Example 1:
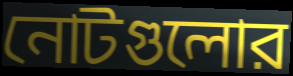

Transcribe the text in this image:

নোটগুলোর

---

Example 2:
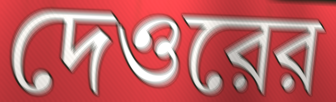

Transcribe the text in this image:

দেওরের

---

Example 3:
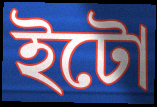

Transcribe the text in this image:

ইটো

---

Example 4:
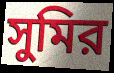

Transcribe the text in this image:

সুমির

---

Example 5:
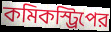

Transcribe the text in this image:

কমিকস্ট্রিপের